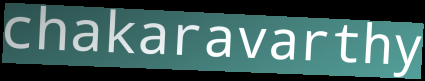
chakaravarthy